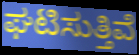
ಘಟಿಸುತ್ತಿವೆ